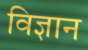
विज्ञान